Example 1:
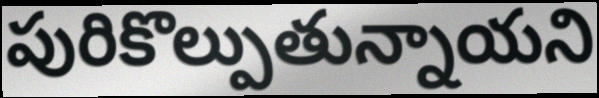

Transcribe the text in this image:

పురికొల్పుతున్నాయని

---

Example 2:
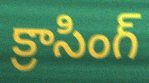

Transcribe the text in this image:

క్రాసింగ్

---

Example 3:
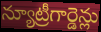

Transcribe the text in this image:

న్యూట్రీగార్డెన్లు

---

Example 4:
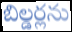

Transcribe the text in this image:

బిల్డర్లను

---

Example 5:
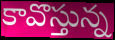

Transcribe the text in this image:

కావొస్తున్న